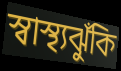
স্বাস্থ্যঝুঁকি